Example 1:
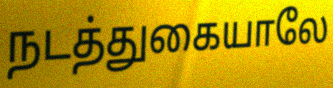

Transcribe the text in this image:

நடத்துகையாலே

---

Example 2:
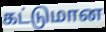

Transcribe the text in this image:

கட்டுமான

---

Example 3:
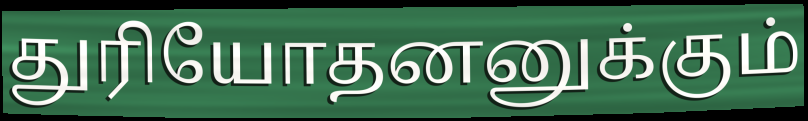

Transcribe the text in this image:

துரியோதனனுக்கும்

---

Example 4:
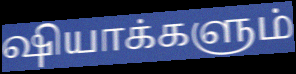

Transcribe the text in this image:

ஷியாக்களும்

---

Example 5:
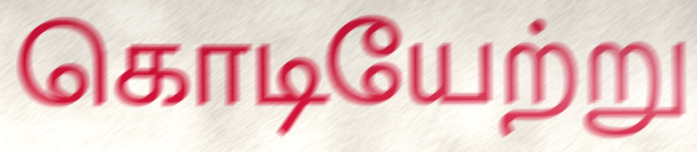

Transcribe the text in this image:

கொடியேற்று